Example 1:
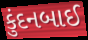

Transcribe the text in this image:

કુંદનબાઈ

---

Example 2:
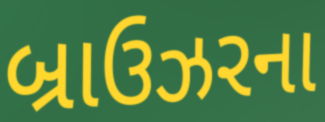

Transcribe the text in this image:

બ્રાઉઝરના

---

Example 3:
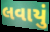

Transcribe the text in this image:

લવાયું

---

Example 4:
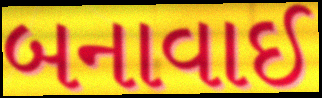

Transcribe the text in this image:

બનાવાઈ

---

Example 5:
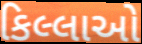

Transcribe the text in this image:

કિલ્લાઓ